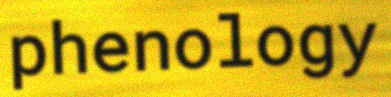
phenology